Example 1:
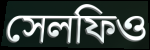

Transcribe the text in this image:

সেলফিও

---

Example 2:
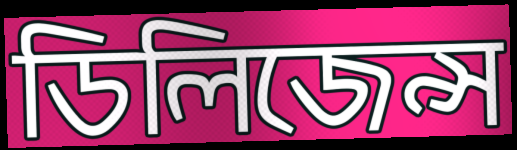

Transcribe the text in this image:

ডিলিজেন্স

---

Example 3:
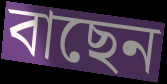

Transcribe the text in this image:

বাছেন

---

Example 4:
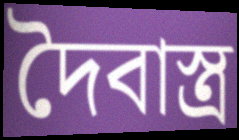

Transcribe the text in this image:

দৈবাস্ত্র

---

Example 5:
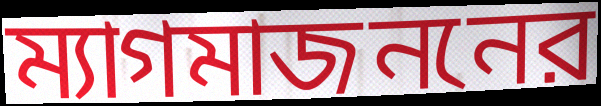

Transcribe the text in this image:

ম্যাগমাজননের